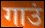
गाउं